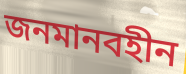
জনমানবহীন